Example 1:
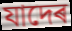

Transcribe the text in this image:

যাদেৰ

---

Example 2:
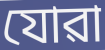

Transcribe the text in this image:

যোৱা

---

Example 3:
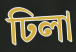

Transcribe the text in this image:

ঢিলা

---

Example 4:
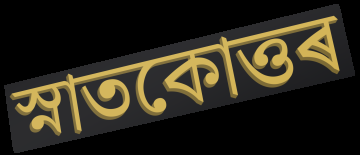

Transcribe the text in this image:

স্নাতকোত্তৰ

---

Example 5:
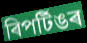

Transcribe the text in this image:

ৰিপৰ্টিঙৰ